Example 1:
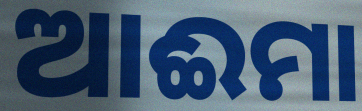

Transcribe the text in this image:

ଆଈମା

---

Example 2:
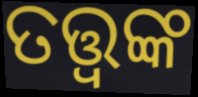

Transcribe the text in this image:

ତତ୍ତ୍ବଙ୍କ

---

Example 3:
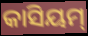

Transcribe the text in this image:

କାସିୟମ୍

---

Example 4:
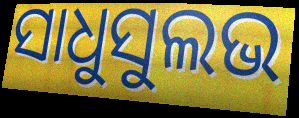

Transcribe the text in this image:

ସାଧୁସୁଲଭ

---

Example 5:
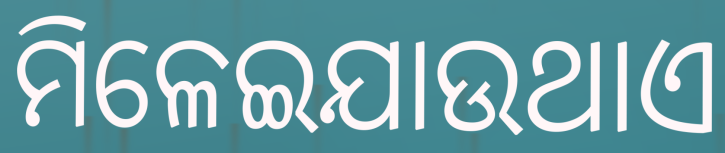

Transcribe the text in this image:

ମିଳେଇଯାଉଥାଏ